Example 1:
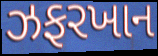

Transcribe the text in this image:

ઝફરખાન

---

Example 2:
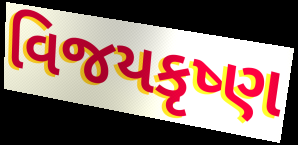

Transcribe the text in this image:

વિજયકૃષ્ણ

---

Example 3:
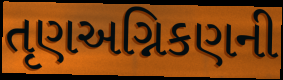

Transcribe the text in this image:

તૃણઅગ્નિકણની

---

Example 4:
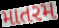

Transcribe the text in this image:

માતરમ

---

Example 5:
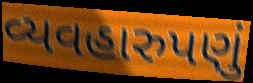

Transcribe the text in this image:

વ્યવહારુપણું